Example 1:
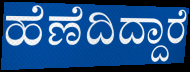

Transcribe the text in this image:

ಹೆಣೆದಿದ್ದಾರೆ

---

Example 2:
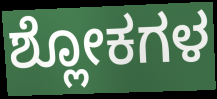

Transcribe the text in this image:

ಶ್ಲೋಕಗಳ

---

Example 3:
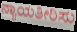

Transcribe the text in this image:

ನ್ಯಾಯತೀರಿಸು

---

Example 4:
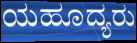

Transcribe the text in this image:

ಯಹೂದ್ಯರು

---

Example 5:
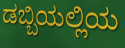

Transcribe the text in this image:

ಡಬ್ಬಿಯಲ್ಲಿಯ